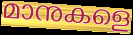
മാനുകളെ